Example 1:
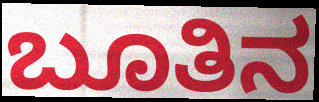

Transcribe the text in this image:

ಬೂತಿನ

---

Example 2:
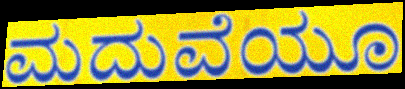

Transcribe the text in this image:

ಮದುವೆಯೂ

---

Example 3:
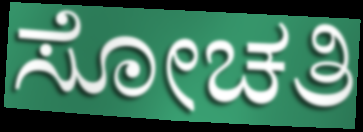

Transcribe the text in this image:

ಸೋಚತಿ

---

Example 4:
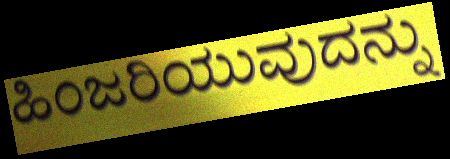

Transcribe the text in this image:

ಹಿಂಜರಿಯುವುದನ್ನು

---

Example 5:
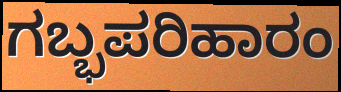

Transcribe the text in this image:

ಗಬ್ಭಪರಿಹಾರಂ